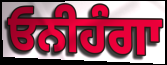
ਓਨੀਹੰਗਾ